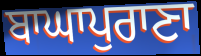
ਬਾਘਾਪੁਰਾਣਾ